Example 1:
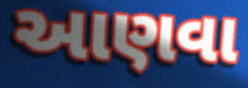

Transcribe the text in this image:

આણવા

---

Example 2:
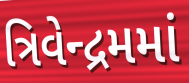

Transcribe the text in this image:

ત્રિવેન્દ્રમમાં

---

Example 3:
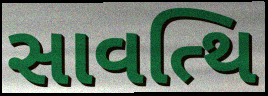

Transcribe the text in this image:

સાવત્થિ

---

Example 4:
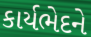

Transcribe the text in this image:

કાર્યભેદને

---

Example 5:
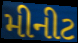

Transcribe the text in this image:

મીનીટ